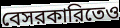
বেসরকারিতেও